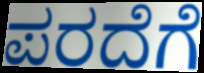
ಪರದೆಗೆ